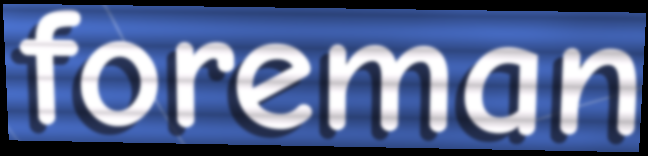
foreman